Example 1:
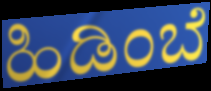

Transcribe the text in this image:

ಹಿಡಿಂಬೆ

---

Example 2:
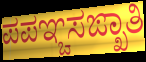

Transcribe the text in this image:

ಪಪಞ್ಚಸಙ್ಖಾತಿ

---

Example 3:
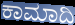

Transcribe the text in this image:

ಕಾಮಾದಿ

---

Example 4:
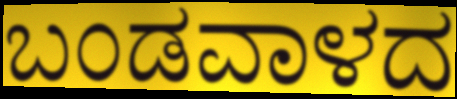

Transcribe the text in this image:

ಬಂಡವಾಳದ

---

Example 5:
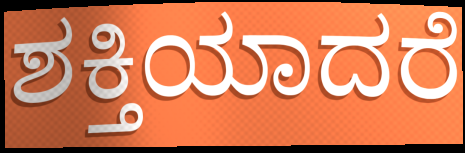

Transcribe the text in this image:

ಶಕ್ತಿಯಾದರೆ